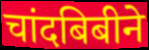
चांदबिबीने